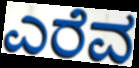
ಎರೆವ